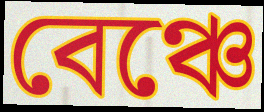
বেঞ্চে